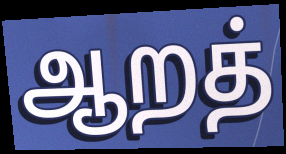
ஆறத்